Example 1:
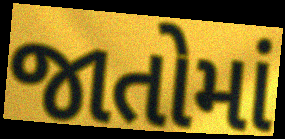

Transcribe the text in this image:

જાતોમાં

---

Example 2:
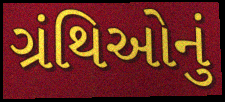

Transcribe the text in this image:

ગ્રંથિઓનું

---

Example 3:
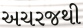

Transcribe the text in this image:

અચરજથી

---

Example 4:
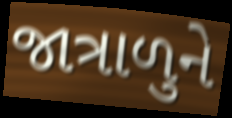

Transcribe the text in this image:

જાત્રાળુને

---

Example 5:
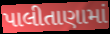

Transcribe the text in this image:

પાલીતાણામાં